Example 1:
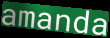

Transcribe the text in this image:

amanda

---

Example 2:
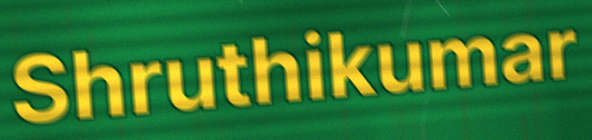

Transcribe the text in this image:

Shruthikumar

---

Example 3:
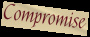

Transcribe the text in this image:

Compromise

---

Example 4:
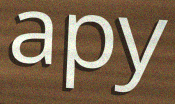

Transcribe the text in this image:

apy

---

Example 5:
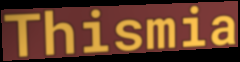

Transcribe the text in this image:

Thismia